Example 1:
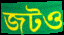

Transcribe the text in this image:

জটও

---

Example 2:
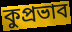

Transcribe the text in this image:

কুপ্রভাব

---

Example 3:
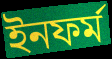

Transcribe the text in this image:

ইনফর্ম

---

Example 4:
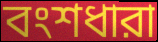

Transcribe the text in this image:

বংশধারা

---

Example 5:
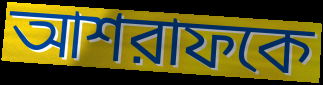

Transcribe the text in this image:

আশরাফকে